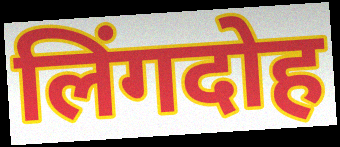
लिंगदोह